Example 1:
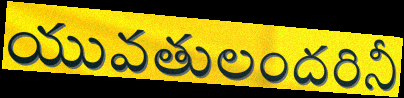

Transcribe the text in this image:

యువతులందరినీ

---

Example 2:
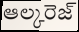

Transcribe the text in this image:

ఆల్కరెజ్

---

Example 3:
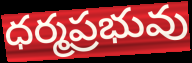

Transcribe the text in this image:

ధర్మప్రభువు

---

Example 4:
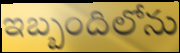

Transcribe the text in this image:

ఇబ్బందిలోను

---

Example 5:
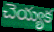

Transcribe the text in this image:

చెయ్యక